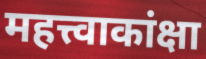
महत्त्वाकांक्षा